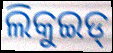
ଲିକୁଇଡ୍